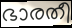
ഭാരതീ